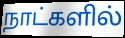
நாட்களில்